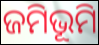
ଜମିଭୂମି